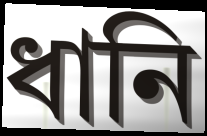
ধানি